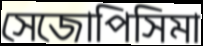
সেজোপিসিমা